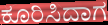
ಕೂರಿಸಿದಾಗ